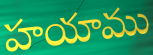
హయాము